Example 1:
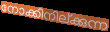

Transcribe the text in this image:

നോക്കിനില്ക്കുന്ന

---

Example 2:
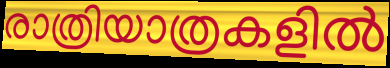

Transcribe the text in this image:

രാത്രിയാത്രകളിൽ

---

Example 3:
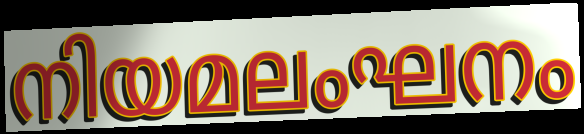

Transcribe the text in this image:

നിയമലംഘനം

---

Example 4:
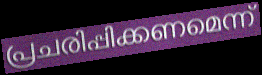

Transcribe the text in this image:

പ്രചരിപ്പിക്കണമെന്ന്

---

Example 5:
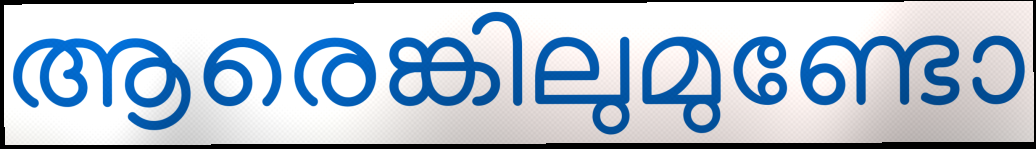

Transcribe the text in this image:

ആരെങ്കിലുമുണ്ടോ